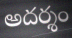
అదర్శం